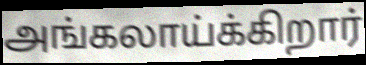
அங்கலாய்க்கிறார்